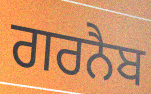
ਗਰਨੈਬ